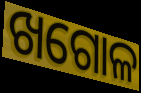
ଖଗୋଳ